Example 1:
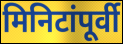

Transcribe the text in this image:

मिनिटांपूर्वी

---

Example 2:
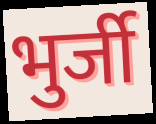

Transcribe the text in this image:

भुर्जी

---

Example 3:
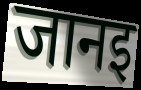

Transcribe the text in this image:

जानइ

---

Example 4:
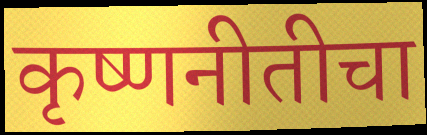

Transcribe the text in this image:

कृष्णनीतीचा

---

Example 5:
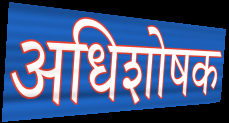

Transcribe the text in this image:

अधिशोषक